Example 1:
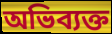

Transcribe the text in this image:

অভিব্যক্ত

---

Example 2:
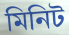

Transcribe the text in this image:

মিনিট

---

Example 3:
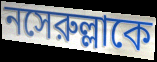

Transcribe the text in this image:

নসেরুল্লাকে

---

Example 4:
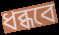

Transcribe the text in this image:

ধব্ধবে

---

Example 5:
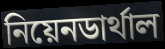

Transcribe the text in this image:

নিয়েনডার্থাল